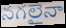
నగలైనా